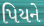
પિયને